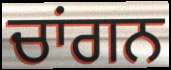
ਚਾਂਗਨ